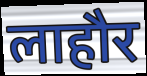
लाहौर